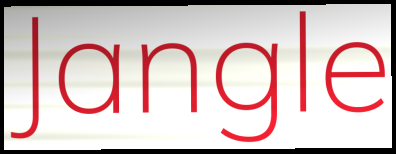
Jangle